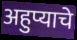
अहुप्याचे